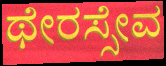
ಥೇರಸ್ಸೇವ